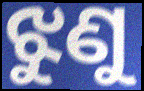
ଝୁଣୁ